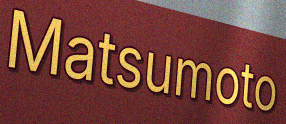
Matsumoto